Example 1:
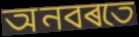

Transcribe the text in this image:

অনবৰতে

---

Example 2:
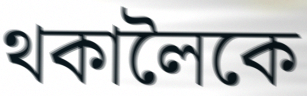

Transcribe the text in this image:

থকালৈকে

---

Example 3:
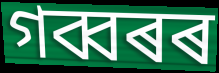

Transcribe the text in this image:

গব্বৰৰ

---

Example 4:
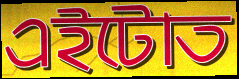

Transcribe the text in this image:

এইটোত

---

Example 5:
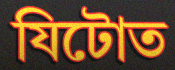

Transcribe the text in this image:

যিটোত